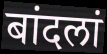
बांदलां